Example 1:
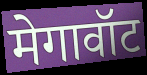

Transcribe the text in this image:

मेगावॉट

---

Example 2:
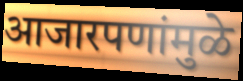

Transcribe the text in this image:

आजारपणांमुळे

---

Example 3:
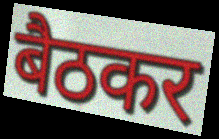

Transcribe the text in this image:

बैठकर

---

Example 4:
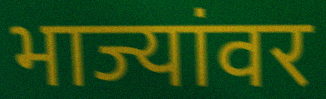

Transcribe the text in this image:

भाज्यांवर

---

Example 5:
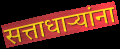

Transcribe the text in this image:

सत्ताधाऱ्यांना